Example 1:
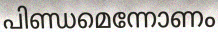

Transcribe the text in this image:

പിണ്ഡമെന്നോണം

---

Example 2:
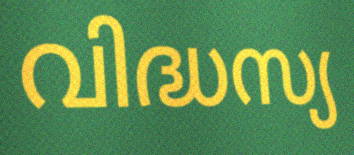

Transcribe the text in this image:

വിദ്ധസ്യ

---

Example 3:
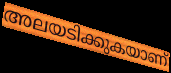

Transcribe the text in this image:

അലയടിക്കുകയാണ്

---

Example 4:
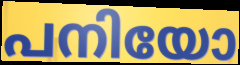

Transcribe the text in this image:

പനിയോ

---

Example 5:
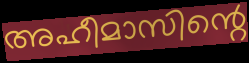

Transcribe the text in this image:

അഹീമാസിന്റെ